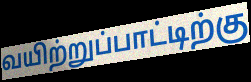
வயிற்றுப்பாட்டிற்கு